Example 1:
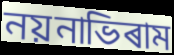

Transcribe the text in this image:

নয়নাভিৰাম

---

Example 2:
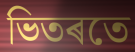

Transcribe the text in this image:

ভিতৰতে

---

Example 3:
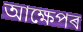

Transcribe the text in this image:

আক্ষেপৰ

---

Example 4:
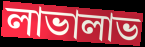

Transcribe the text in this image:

লাভালাভ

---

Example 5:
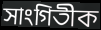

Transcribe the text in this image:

সাংগিতীক